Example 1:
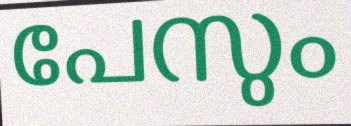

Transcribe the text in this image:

പേസും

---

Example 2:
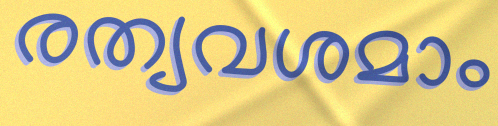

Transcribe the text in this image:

രത്യവശമാം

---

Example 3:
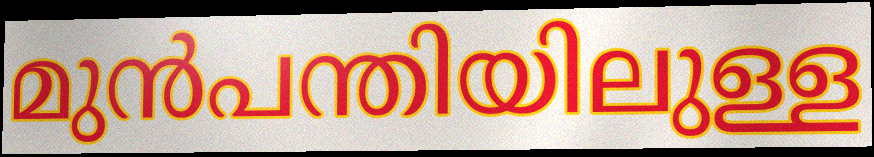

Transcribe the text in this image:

മുൻപന്തിയിലുള്ള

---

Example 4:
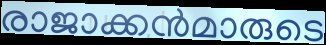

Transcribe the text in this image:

രാജാക്കൻമാരുടെ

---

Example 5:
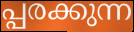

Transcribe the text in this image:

പ്പരക്കുന്ന